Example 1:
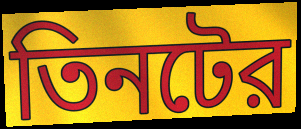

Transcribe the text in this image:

তিনটের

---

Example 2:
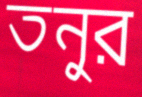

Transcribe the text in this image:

তনুর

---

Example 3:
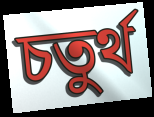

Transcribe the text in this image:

চতুর্থ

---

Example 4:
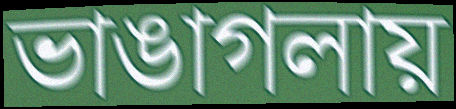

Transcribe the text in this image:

ভাঙাগলায়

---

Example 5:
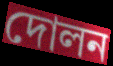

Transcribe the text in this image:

দোলন